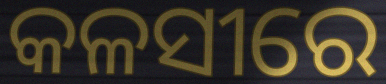
କଳସୀରେ